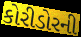
કોરીડોરની